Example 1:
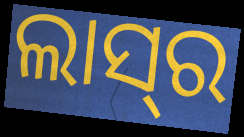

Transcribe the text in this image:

ଲାସ୍‌ର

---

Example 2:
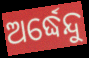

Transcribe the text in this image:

ଅର୍ଦ୍ଧେନ୍ଦୁ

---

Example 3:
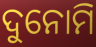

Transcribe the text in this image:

ଦୁନୋମି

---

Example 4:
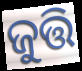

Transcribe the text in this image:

ଜୁତ୍ତି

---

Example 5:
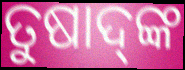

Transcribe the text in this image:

ତୁଷାଦ୍‌ଙ୍କ